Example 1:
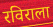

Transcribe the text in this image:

रविराला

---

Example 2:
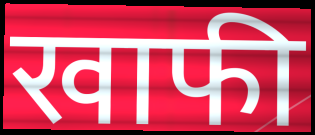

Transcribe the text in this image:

खाफी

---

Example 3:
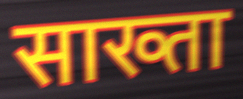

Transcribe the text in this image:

साख्ता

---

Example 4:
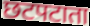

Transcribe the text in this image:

छटपटाता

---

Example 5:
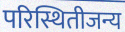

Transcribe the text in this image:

परिस्थितीजन्य